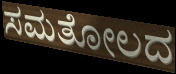
ಸಮತೋಲದ